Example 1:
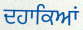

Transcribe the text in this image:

ਦਹਾਕਿਆਂ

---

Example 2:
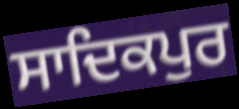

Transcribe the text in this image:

ਸਾਦਿਕਪੁਰ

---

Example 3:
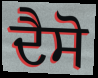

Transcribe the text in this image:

ਦੈਸੋ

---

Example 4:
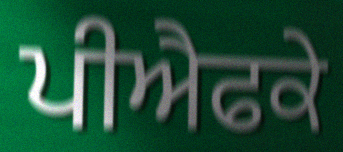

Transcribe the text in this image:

ਪੀਐਫਕੇ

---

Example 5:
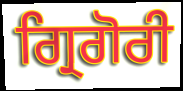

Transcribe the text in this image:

ਗ੍ਰਿਗੋਰੀ